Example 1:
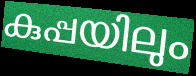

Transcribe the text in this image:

കുപ്പയിലും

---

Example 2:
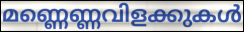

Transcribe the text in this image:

മണ്ണെണ്ണവിളക്കുകൾ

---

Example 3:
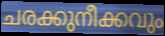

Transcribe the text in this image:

ചരക്കുനീക്കവും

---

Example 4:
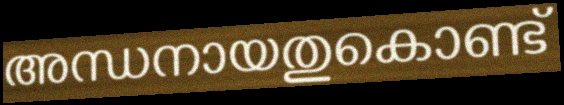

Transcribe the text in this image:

അന്ധനായതുകൊണ്ട്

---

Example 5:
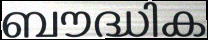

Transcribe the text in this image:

ബൗദ്ധിക